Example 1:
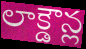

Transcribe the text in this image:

లాక్డౌన్ల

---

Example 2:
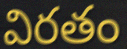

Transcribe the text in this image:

విరతం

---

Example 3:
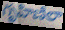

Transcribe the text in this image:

గృహిణిలా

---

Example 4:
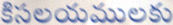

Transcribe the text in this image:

కిసలయములకు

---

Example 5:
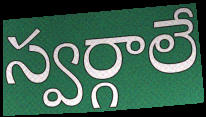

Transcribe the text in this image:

స్వర్గాలే